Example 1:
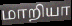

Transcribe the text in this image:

மாறியா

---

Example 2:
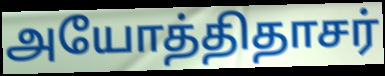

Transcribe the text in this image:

அயோத்திதாசர்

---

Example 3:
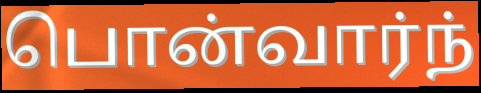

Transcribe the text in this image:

பொன்வார்ந்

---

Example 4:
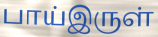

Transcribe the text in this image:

பாய்இருள்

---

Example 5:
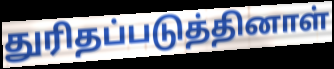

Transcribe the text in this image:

துரிதப்படுத்தினாள்